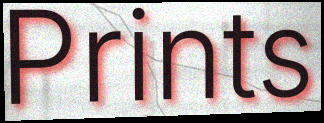
Prints